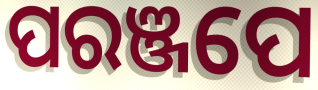
ପରଞ୍ଜପେ